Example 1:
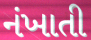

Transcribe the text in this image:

નંખાતી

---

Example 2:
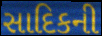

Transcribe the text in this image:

સાદિકની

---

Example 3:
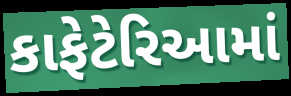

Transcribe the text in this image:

કાફેટેરિઆમાં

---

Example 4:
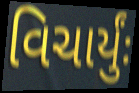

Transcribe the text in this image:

વિચાર્યુંઃ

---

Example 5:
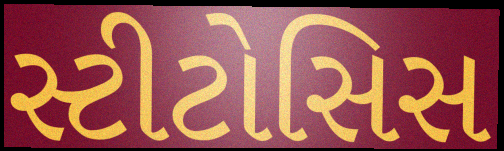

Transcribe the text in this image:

સ્ટીટોસિસ